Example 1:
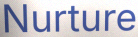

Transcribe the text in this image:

Nurture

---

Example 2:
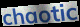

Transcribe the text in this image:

chaotic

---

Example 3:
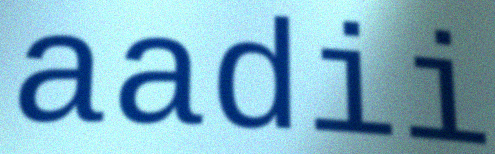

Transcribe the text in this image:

aadii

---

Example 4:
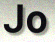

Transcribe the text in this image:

Jo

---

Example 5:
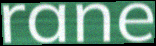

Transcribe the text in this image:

rane